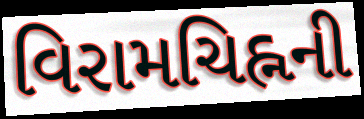
વિરામચિહ્નની